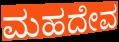
ಮಹದೇವ